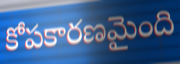
కోపకారణమైంది